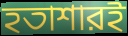
হতাশারই